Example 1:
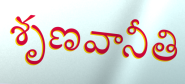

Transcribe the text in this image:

శృణవానీతి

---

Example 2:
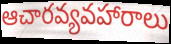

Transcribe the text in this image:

ఆచారవ్యవహారాలు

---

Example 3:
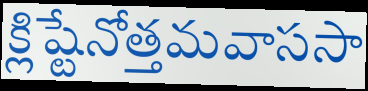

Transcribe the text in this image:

క్లిష్టేనోత్తమవాససా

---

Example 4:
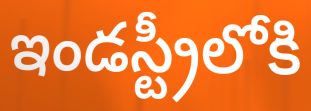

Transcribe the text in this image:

ఇండస్ట్రీలోకి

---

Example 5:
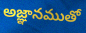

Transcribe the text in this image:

అజ్ఞానముతో